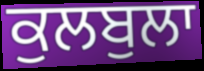
ਕੁਲਬੁਲਾ